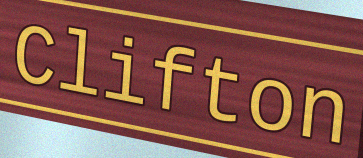
Clifton